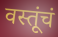
वस्तूंचं